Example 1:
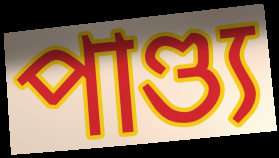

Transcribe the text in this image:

পাণ্ড্য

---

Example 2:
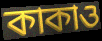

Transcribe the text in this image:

কাকাও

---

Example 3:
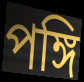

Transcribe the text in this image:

পঙ্গি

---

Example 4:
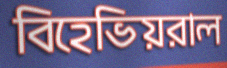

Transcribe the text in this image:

বিহেভিয়রাল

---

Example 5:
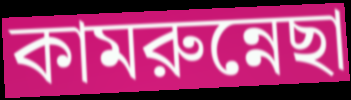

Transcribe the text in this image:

কামরুন্নেছা